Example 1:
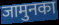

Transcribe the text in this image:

जामुनका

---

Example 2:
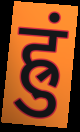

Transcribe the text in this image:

ह्रुं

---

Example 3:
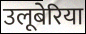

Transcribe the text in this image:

उलूबेरिया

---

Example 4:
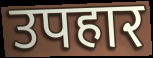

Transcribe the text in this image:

उपहार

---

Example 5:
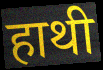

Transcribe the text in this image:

हाथी